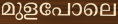
മുളപോലെ